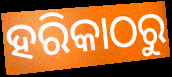
ହରିକାଠରୁ